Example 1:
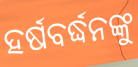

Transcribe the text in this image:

ହର୍ଷବର୍ଦ୍ଧନଙ୍କୁ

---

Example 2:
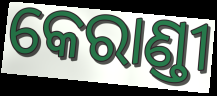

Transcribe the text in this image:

କେରାଣ୍ଡୀ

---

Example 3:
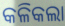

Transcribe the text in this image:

କଳିକଲା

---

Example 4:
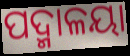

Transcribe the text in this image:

ପଦ୍ମାଳୟା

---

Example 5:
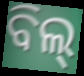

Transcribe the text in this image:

ବିଲ୍